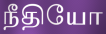
நீதியோ